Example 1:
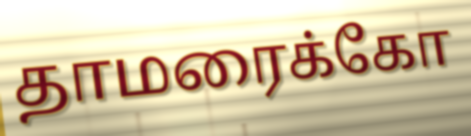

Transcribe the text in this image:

தாமரைக்கோ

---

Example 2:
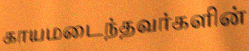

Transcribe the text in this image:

காயமடைந்தவர்களின்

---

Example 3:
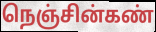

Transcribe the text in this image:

நெஞ்சின்கண்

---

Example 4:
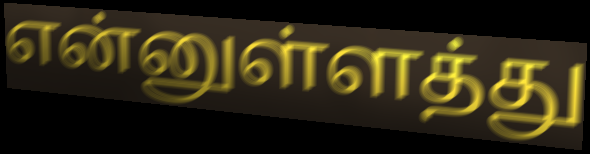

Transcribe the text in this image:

என்னுள்ளத்து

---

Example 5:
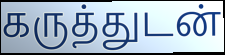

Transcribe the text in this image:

கருத்துடன்